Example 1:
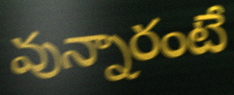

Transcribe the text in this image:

వున్నారంటే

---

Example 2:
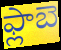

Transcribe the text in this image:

ఫ్లాబె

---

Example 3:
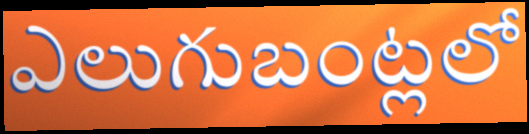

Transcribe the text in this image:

ఎలుగుబంట్లలో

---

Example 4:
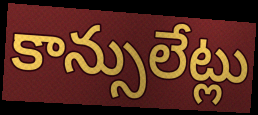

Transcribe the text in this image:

కాన్సులేట్లు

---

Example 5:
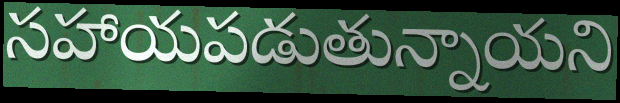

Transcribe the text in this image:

సహాయపడుతున్నాయని